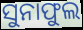
ସୁନାଫୁଲ